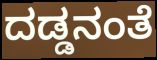
ದಡ್ಡನಂತೆ